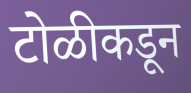
टोळीकडून